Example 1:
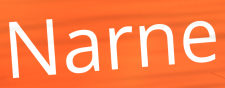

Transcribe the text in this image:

Narne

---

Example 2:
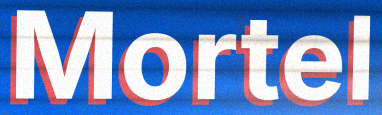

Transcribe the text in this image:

Mortel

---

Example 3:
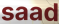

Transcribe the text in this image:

saad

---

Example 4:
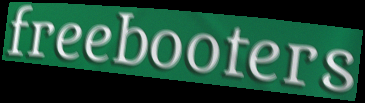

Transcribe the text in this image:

freebooters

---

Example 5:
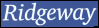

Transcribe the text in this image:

Ridgeway